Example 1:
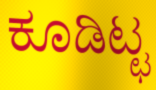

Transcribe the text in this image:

ಕೂಡಿಟ್ಟ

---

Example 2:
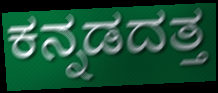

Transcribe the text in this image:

ಕನ್ನಡದತ್ತ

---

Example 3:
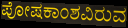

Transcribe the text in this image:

ಪೋಷಕಾಂಶವಿರುವ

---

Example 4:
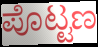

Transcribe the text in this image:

ಪೊಟ್ಟಣ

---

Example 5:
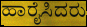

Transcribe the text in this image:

ಹಾರೈಸಿದರು